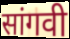
सांगवी